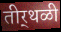
तीर्थळी